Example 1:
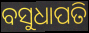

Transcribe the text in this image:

ବସୁଧାପତି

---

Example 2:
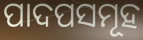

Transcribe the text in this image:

ପାଦପସମୂହ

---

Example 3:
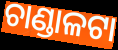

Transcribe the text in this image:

ଚାଣ୍ଡାଳଟା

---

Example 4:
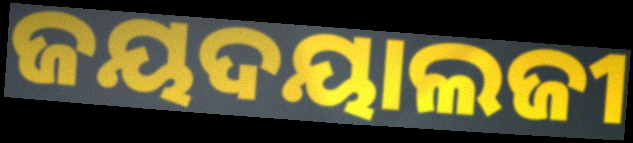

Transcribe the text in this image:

ଜୟଦୟାଲଜୀ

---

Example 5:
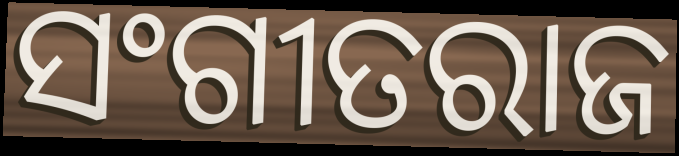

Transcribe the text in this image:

ସଂଗୀତରାଜ